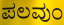
ಪಲವುಂ